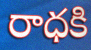
రాధకి